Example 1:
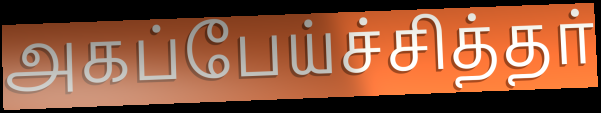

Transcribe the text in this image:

அகப்பேய்ச்சித்தர்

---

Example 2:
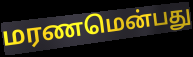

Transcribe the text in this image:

மரணமென்பது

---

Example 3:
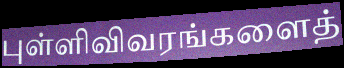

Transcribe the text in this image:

புள்ளிவிவரங்களைத்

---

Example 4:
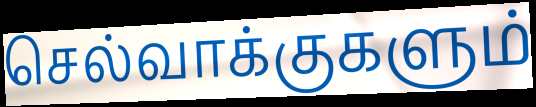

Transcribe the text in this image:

செல்வாக்குகளும்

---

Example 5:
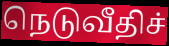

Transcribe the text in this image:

நெடுவீதிச்